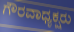
ಗೌರವಾಧ್ಯಕ್ಷರು